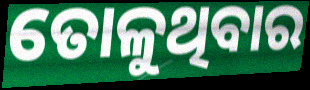
ତୋଳୁଥିବାର